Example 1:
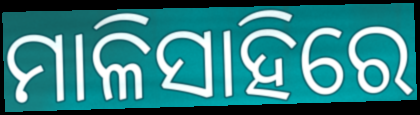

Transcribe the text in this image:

ମାଳିସାହିରେ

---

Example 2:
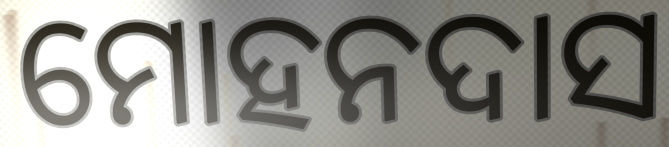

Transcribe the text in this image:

ମୋହନଦାସ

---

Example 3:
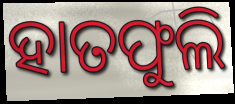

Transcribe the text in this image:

ହାତଫୁଲି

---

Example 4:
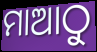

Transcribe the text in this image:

ମାଆଠୁ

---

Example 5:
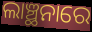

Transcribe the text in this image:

ଲାଞ୍ଛନାରେ